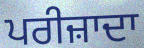
ਪਰੀਜ਼ਾਦਾ